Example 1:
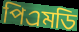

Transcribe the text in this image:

পিএমডি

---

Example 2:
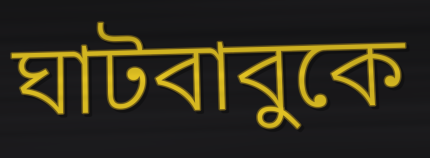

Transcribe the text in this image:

ঘাটবাবুকে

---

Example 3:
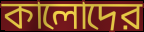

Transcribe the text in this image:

কালোদের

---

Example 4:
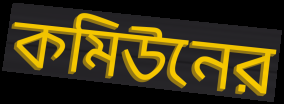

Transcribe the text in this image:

কমিউনের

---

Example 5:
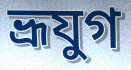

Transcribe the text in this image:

ভ্রূযুগ